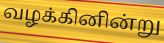
வழக்கினின்று